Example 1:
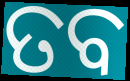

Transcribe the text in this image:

ତବ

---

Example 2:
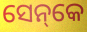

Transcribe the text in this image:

ସେନ୍‌କେ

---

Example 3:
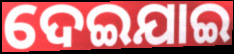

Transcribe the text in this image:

ଦେଇଯାଇ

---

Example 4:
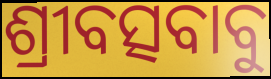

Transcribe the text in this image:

ଶ୍ରୀବତ୍ସବାବୁ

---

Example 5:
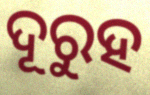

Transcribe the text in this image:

ଦୂରୁହ